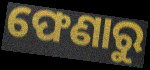
ଫେଣାରୁ